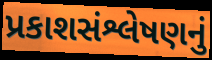
પ્રકાશસંશ્લેષણનું